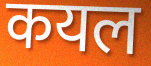
कयल